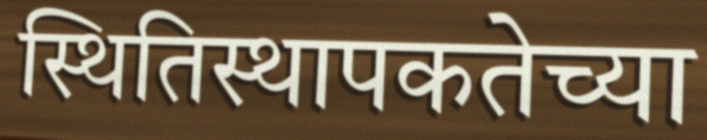
स्थितिस्थापकतेच्या